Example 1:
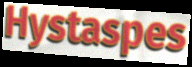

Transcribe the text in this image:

Hystaspes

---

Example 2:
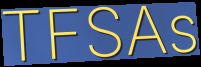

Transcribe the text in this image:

TFSAs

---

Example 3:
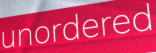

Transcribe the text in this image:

unordered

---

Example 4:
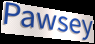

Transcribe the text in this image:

Pawsey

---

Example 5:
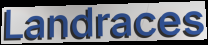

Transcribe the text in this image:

Landraces